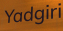
Yadgiri